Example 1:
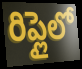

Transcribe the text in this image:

రిప్లైలో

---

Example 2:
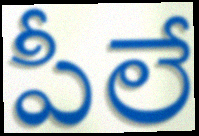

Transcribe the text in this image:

పీలే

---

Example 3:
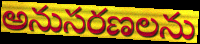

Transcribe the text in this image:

అనుసరణలను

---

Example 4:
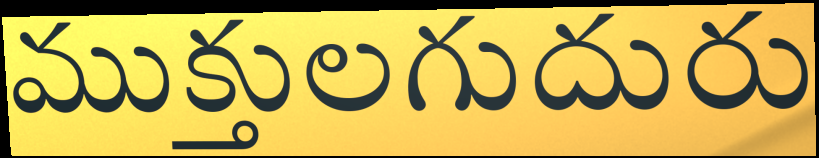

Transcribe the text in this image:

ముక్తులగుదురు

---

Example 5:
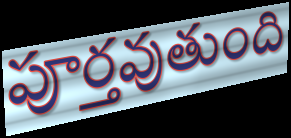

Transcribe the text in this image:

పూర్తవుతుంది